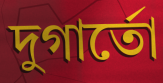
দুগার্তো